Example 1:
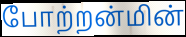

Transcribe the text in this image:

போற்றன்மின்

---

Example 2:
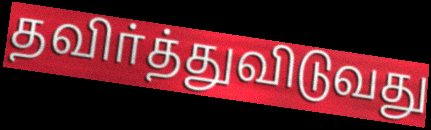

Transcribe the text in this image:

தவிர்த்துவிடுவது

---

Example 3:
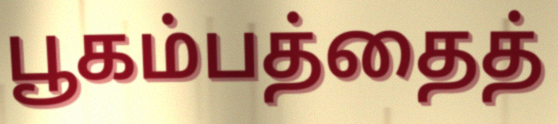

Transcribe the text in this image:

பூகம்பத்தைத்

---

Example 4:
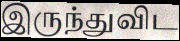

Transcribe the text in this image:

இருந்துவிட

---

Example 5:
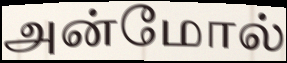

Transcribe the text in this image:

அன்மோல்